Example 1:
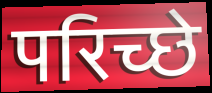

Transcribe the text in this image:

परिच्छे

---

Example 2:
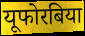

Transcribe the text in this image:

यूफोरबिया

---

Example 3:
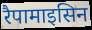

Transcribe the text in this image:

रैपामाइसिन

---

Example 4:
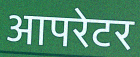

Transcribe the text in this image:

आपरेटर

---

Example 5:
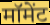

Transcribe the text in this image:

मॉमेंट